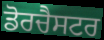
ਡੋਰਚੈਸਟਰ